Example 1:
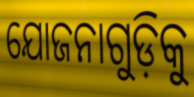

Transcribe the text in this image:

ଯୋଜନାଗୁଡ଼ିକୁ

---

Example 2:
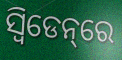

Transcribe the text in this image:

ସ୍ୱିଡେନ୍‌ରେ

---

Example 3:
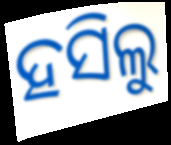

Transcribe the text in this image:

ହସିଲୁ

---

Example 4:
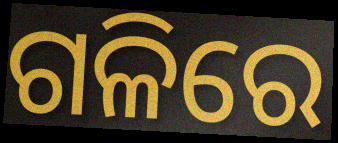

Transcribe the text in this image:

ଗଳିରେ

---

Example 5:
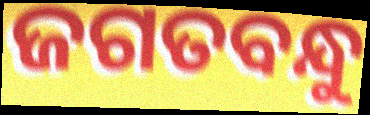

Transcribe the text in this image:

ଜଗତବନ୍ଧୁ